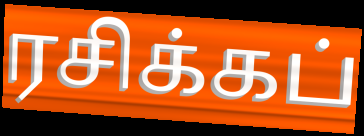
ரசிக்கப்